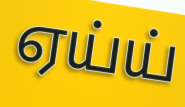
ஏய்ய்